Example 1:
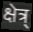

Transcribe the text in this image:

क्षेत्र्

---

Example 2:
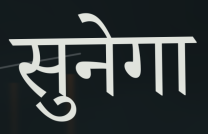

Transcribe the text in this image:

सुनेगा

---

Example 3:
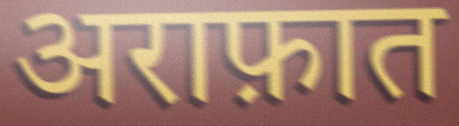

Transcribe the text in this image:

अराफ़ात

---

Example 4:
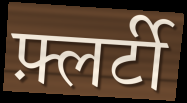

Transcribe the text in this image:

फ़्लर्टी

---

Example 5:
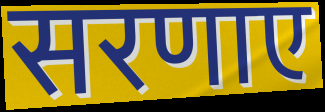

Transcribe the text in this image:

सरणाए